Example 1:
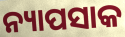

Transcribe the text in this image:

ନ୍ୟାପସାକ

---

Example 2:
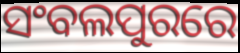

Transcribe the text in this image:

ସଂବଲପୁରରେ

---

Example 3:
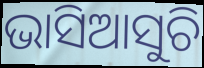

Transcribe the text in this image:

ଭାସିଆସୁଚି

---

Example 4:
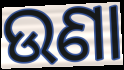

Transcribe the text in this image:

ଉଣା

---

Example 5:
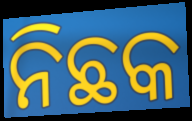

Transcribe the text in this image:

ନିଛକ